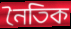
নৈতিক